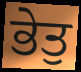
ਭੇਤੁ